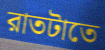
রাতটাতে